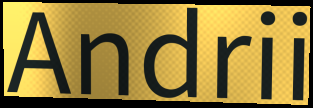
Andrii